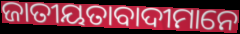
ଜାତୀୟତାବାଦୀମାନେ